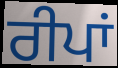
ਰੀਪਾਂ